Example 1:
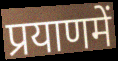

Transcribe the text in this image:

प्रयाणमें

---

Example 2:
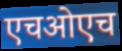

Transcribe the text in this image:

एचओएच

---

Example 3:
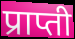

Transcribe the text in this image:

प्राप्ती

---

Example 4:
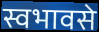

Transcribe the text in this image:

स्वभावसे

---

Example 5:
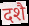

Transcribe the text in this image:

दशै